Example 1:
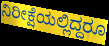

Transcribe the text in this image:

ನಿರೀಕ್ಷೆಯಲ್ಲಿದ್ದರೂ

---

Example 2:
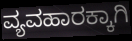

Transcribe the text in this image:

ವ್ಯವಹಾರಕ್ಕಾಗಿ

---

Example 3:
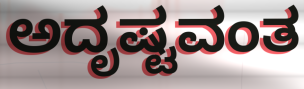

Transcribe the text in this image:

ಅದೃಷ್ಟವಂತ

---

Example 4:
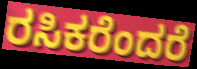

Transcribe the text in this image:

ರಸಿಕರೆಂದರೆ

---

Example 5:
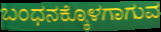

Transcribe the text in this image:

ಬಂಧನಕ್ಕೊಳಗಾಗುವ